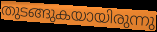
തുടങ്ങുകയായിരുന്നു